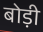
बोड़ी